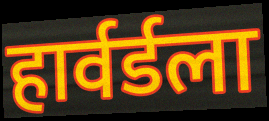
हार्वर्डला